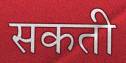
सकती